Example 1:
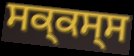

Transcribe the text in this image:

ਸਕ੍ਕਸ੍ਸ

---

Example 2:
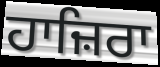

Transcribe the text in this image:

ਹਾਜ਼ਿਰਾ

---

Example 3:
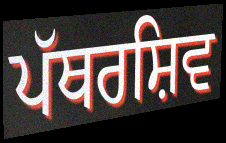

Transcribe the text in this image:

ਪੱਥਰਸ਼ਿਵ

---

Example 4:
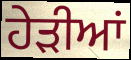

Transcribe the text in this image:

ਹੇੜੀਆਂ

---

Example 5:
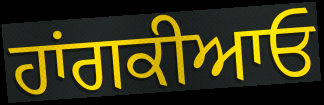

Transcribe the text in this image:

ਹਾਂਗਕੀਆਓ